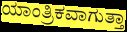
ಯಾಂತ್ರಿಕವಾಗುತ್ತಾ